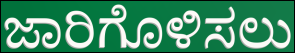
ಜಾರಿಗೊಳಿಸಲು